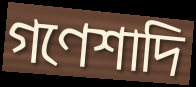
গণেশাদি